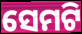
ସେମଟି